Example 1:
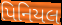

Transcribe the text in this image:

પિનિયલ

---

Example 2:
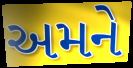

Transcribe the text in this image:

અમને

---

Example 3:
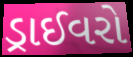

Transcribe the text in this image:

ડ્રાઈવરો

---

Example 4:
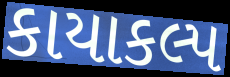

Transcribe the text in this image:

કાયાકલ્પ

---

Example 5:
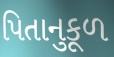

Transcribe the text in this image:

પિતાનુકૂળ